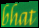
bhat